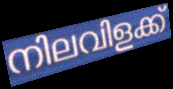
നിലവിളക്ക്